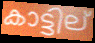
കാട്ടില്